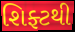
શિફ્ટથી